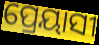
ପ୍ରେୟାସୀ